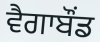
ਵੈਗਾਬੌਂਡ